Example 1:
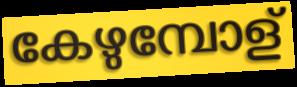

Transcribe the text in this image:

കേഴുമ്പോള്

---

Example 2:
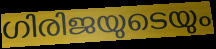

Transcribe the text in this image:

ഗിരിജയുടെയും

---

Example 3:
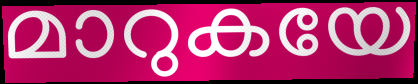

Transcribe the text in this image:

മാറുകയേ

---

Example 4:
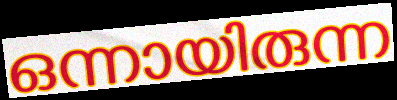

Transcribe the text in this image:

ഒന്നായിരുന്ന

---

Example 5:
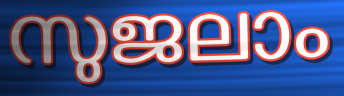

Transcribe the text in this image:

സുജലാം